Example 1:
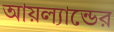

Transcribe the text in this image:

আয়ল্যান্ডের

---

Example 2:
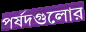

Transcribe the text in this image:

পর্ষদগুলোর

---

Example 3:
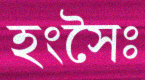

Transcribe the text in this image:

হংসৈঃ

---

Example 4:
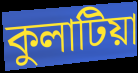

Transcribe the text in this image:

কুলাটিয়া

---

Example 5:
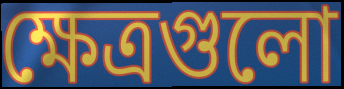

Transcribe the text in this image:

ক্ষেত্রগুলো